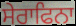
ਸੇਰਾਫਿਨਾ